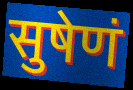
सुषेणं